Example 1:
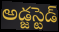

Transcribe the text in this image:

అడ్జస్టెడ్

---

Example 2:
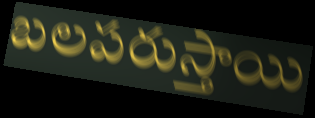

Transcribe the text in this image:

బలపరుస్తాయి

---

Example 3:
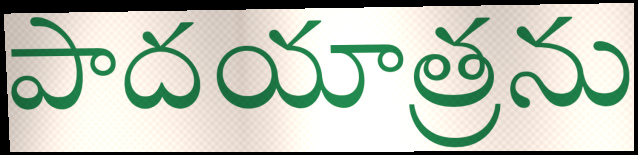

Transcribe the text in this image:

పాదయాత్రను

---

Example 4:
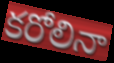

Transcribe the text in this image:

కరోలినా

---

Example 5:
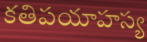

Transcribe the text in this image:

కతిపయాహస్య